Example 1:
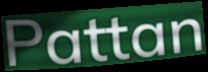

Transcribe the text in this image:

Pattan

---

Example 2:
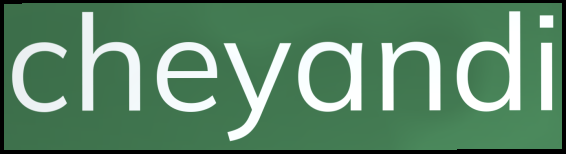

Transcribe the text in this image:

cheyandi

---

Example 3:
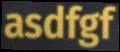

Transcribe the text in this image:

asdfgf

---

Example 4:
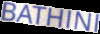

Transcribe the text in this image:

BATHINI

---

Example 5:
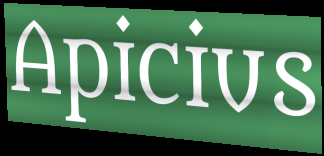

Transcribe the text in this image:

Apicius